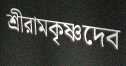
শ্রীরামকৃষ্ণদেব